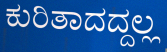
ಕುರಿತಾದದ್ದಲ್ಲ